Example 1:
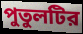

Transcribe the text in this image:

পুতুলটির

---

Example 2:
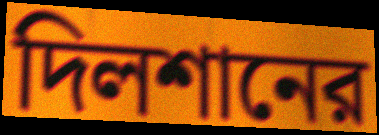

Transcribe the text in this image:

দিলশানের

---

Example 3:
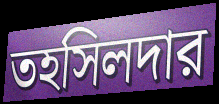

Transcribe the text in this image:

তহসিলদার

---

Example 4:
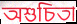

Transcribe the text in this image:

অশুচিতা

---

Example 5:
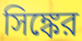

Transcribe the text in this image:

সিঙ্কের